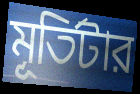
মূর্তিটার